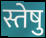
स्तेषु